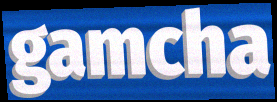
gamcha